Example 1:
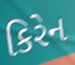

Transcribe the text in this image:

કિરેન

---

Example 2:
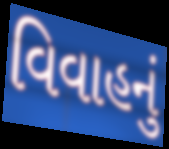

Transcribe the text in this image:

વિવાહનું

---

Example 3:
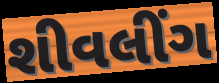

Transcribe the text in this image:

શીવલીંગ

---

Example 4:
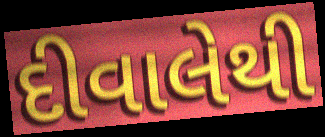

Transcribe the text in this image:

દીવાલેથી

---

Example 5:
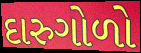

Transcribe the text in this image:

દારુગોળો